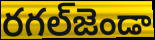
రగల్‌జెండా